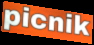
picnik